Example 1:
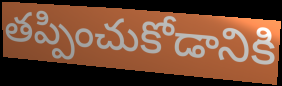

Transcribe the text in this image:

తప్పించుకోడానికి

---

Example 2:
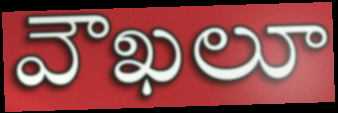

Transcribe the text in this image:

వౌఖలూ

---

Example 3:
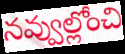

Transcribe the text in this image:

నవ్వుల్లోంచి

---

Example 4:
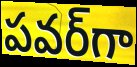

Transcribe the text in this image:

పవర్‌గా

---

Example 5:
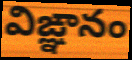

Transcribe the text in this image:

విఙ్ఞానం